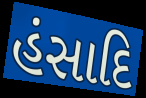
હંસાદિ